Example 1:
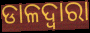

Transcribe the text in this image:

ଡାଳଦ୍ୱାରା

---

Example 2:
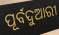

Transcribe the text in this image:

ପୂର୍ବଦୁଆରୀ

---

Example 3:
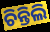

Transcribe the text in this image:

ଚିନ୍ତିଲି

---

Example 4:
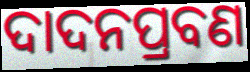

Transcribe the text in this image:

ଦାଦନପ୍ରବଣ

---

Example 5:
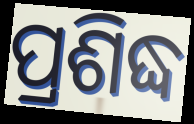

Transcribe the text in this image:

ପ୍ରଶିଦ୍ଧ